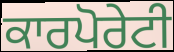
ਕਾਰਪੋਰੇਟੀ